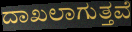
ದಾಖಲಾಗುತ್ತವೆ